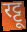
रट्टू